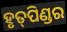
ହୃତ୍‍ପିଣ୍ଡର